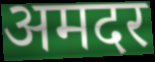
अमदर